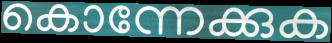
കൊന്നേക്കുക